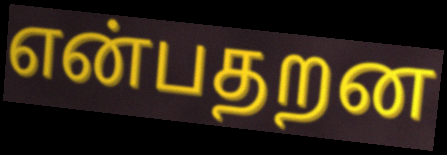
என்பதறன